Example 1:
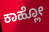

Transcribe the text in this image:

ಕಾಹ್ಲೋ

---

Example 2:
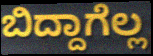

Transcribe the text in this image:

ಬಿದ್ದಾಗೆಲ್ಲ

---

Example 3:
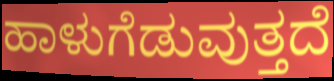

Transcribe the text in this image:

ಹಾಳುಗೆಡುವುತ್ತದೆ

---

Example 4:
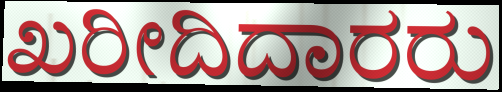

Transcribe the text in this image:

ಖರೀದಿದಾರರು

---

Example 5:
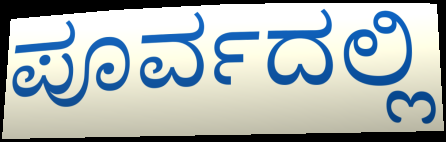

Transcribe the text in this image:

ಪೂರ್ವದಲ್ಲಿ